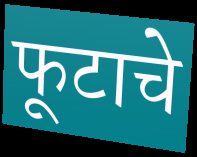
फूटाचे